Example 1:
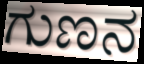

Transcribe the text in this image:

ಗುಣನ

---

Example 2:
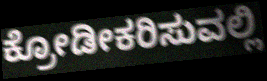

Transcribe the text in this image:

ಕ್ರೋಡೀಕರಿಸುವಲ್ಲಿ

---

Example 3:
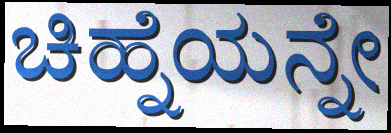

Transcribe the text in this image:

ಚಿಹ್ನೆಯನ್ನೇ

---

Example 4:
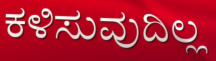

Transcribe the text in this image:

ಕಳಿಸುವುದಿಲ್ಲ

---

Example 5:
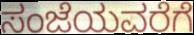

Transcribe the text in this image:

ಸಂಜೆಯವರೆಗೆ